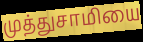
முத்துசாமியை